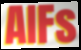
AIFs